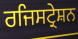
ਰਜਿਸਟ੍ਰੇਸ਼ਨ